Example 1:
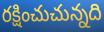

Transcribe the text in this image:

రక్షించుచున్నది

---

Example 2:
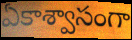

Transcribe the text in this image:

ఏకాశ్వాసంగా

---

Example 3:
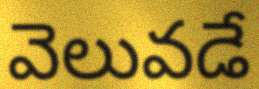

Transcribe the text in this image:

వెలువడే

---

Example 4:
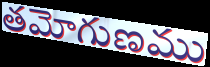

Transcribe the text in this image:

తమోగుణము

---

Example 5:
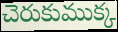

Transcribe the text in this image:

చెరుకుముక్క